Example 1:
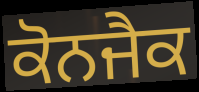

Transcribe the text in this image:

ਕੋਨਜੈਕ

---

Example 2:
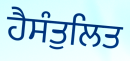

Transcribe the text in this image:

ਹੈਸੰਤੁਲਿਤ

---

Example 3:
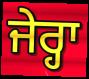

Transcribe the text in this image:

ਜੇਰ੍ਹਾ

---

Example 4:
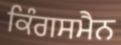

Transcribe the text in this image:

ਕਿੰਗਸਮੈਨ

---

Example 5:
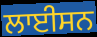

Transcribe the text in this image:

ਲਾਈਸਨ